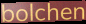
bolchen